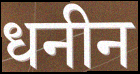
धनीन